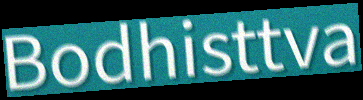
Bodhisttva